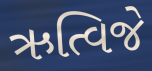
ઋત્વિજે